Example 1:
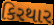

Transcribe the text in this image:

કિરથાર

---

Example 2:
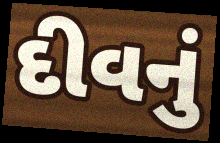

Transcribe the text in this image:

દીવનું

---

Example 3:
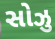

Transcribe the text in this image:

સોઝુ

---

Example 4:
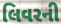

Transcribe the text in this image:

લિવરની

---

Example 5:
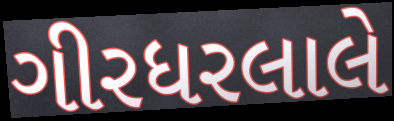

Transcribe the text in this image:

ગીરધરલાલે